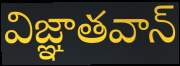
విజ్ఞాతవాన్